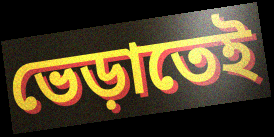
ভেড়াতেই